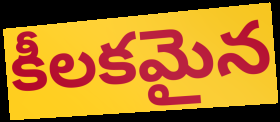
కీలకమైన